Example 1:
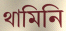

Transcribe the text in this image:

থামিনি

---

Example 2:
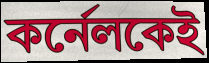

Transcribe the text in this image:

কর্নেলকেই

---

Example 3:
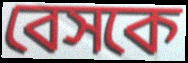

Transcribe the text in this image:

বেসকে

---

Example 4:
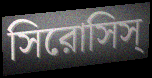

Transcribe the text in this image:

সিরোসিস্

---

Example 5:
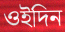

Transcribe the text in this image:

ওইদিন